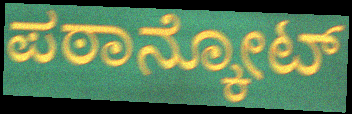
ಪಠಾನ್ಕೋಟ್